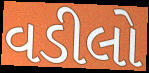
વડીલો